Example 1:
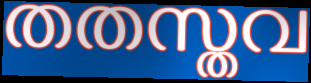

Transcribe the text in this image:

തതസ്തവ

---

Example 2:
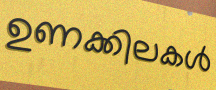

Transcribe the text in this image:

ഉണക്കിലകൾ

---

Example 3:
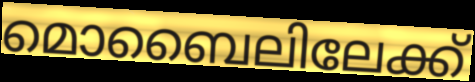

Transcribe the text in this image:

മൊബൈലിലേക്ക്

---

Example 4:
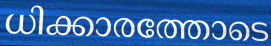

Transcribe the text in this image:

ധിക്കാരത്തോടെ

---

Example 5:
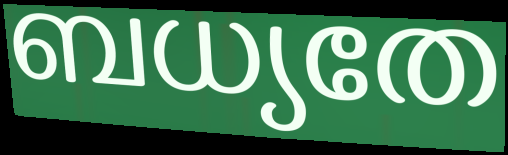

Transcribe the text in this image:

ബധ്യതേ